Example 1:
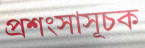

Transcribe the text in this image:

প্ৰশংসাসূচক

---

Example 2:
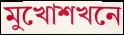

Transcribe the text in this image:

মুখোশখনে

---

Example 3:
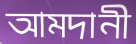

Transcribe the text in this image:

আমদানী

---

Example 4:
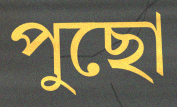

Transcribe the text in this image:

পুছো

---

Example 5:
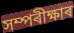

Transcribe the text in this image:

সম্পৰীক্ষাৰ